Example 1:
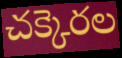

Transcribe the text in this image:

చక్కెరల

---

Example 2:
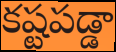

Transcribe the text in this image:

కష్టపడ్డా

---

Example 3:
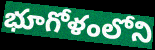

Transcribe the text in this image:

భూగోళంలోని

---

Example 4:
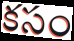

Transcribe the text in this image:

కసం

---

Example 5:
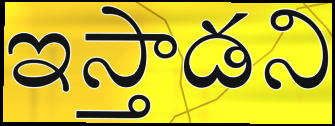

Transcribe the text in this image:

ఇస్తాడని